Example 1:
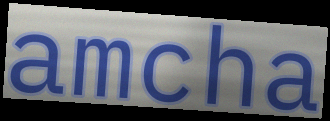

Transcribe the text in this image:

amcha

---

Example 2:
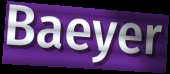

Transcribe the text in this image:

Baeyer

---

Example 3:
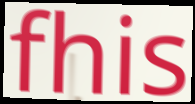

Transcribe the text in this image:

fhis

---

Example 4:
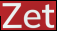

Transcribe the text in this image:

Zet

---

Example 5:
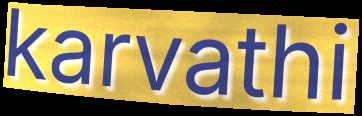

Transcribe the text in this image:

karvathi